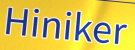
Hiniker